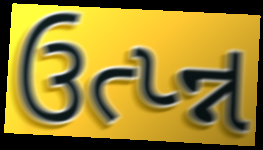
ઉત્પ્ન્ન